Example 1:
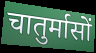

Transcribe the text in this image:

चातुर्मासों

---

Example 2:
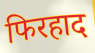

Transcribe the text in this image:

फिरहाद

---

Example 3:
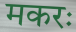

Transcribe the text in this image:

मकरः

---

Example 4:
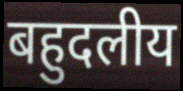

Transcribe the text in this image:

बहुदलीय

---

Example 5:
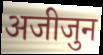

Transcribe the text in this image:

अजीजुन